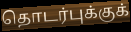
தொடர்புக்குக்